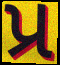
પ્ર